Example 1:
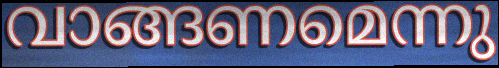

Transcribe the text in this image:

വാങ്ങണമെന്നു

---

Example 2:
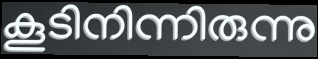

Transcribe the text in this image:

കൂടിനിന്നിരുന്നു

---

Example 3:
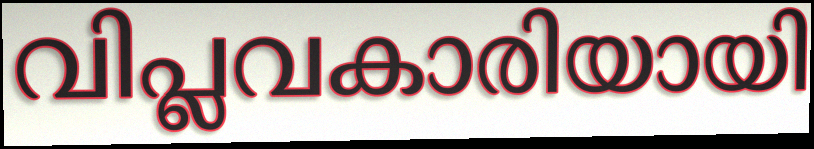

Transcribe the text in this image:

വിപ്ലവകാരിയായി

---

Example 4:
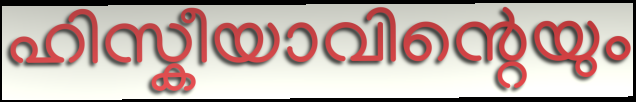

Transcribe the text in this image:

ഹിസ്കീയാവിന്റെയും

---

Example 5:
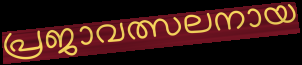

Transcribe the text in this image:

പ്രജാവത്സലനായ